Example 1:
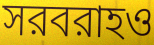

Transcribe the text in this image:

সরবরাহও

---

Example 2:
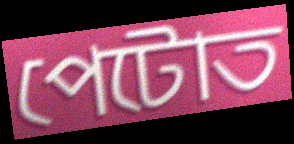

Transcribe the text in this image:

পেটোত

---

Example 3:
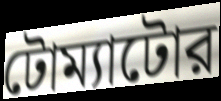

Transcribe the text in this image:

টোম্যাটোর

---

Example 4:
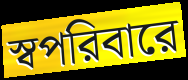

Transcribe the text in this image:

স্বপরিবারে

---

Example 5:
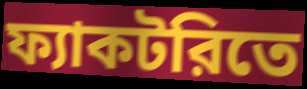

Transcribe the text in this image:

ফ্যাকটরিতে